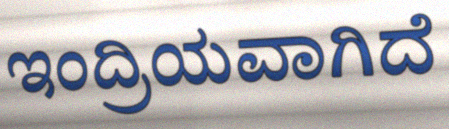
ಇಂದ್ರಿಯವಾಗಿದೆ